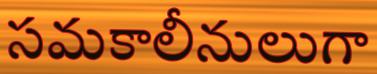
సమకాలీనులుగా